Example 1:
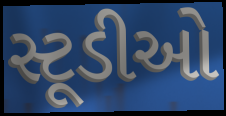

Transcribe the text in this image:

સ્ટૂડીઓ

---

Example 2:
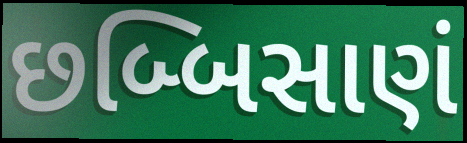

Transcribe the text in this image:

છબ્બિસાણં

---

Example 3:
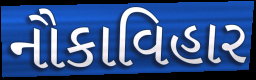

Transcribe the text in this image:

નૌકાવિહાર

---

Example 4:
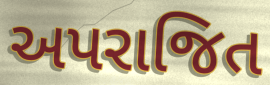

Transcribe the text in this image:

અપરાજિત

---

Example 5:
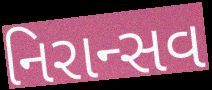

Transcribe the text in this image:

નિરાન્સવ